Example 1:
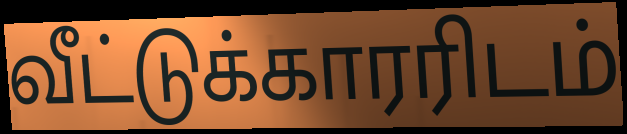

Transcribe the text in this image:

வீட்டுக்காரரிடம்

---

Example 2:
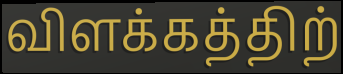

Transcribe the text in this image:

விளக்கத்திற்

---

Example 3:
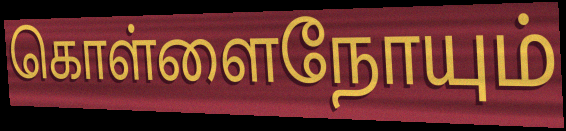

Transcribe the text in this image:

கொள்ளைநோயும்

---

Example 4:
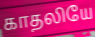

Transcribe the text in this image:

காதலியே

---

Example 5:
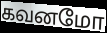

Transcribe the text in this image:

கவனமோ